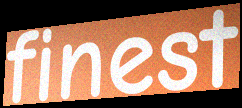
finest